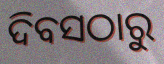
ଦିବସଠାରୁ